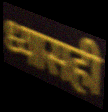
ध्यासही